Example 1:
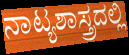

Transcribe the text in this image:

ನಾಟ್ಯಶಾಸ್ತ್ರದಲ್ಲಿ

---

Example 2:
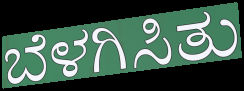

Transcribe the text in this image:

ಬೆಳಗಿಸಿತು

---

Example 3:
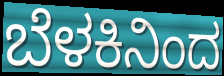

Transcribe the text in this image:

ಬೆಳಕಿನಿಂದ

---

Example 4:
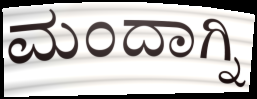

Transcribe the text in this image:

ಮಂದಾಗ್ನಿ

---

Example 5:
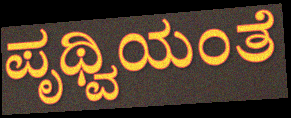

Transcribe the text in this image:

ಪೃಥ್ವಿಯಂತೆ